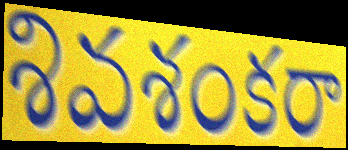
శివశంకరా